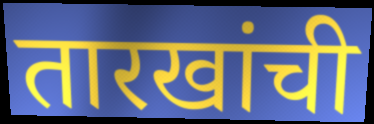
तारखांची